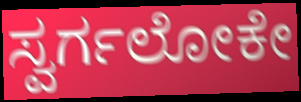
ಸ್ವರ್ಗಲೋಕೇ